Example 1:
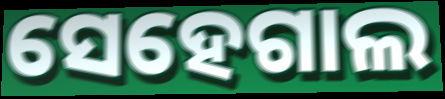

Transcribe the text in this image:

ସେହେଗାଲ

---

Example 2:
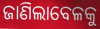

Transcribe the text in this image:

ଜାଣିଲାବେଳକୁ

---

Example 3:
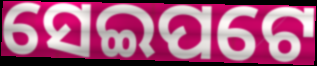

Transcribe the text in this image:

ସେଇପଟେ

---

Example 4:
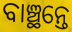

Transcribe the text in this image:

ବାଞ୍ଛନ୍ତେ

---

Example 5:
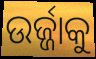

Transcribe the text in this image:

ଉର୍ଜ୍ଜାକୁ